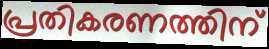
പ്രതികരണത്തിന്